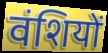
वंशियों